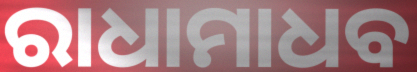
ରାଧାମାଧବ